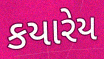
કયારેય